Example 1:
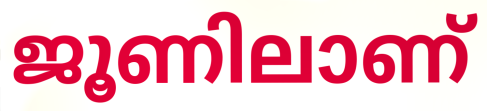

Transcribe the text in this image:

ജൂണിലാണ്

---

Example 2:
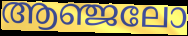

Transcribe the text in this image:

ആഞ്ജലോ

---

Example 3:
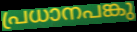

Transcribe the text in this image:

പ്രധാനപങ്കു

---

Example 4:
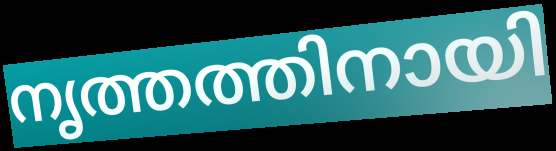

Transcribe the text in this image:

നൃത്തത്തിനായി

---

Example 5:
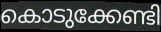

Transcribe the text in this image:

കൊടുക്കേണ്ടി